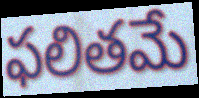
ఫలితమే